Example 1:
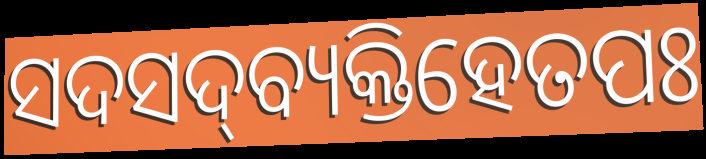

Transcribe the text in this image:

ସଦସଦ୍‌ବ୍ୟକ୍ତିହେତପଃ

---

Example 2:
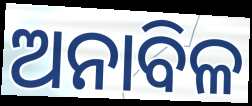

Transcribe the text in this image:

ଅନାବିଳ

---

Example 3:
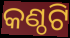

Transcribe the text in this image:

କଣ୍ଠଟି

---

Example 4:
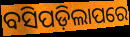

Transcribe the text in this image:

ବସିପଡ଼ିଲାପରେ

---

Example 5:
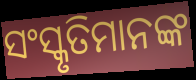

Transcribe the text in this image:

ସଂସ୍କୃତିମାନଙ୍କ